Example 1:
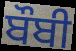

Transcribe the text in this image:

ਬੌਬੀ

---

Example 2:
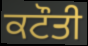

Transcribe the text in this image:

ਕਟੌਤੀ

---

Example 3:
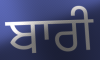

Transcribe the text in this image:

ਬਾਰੀ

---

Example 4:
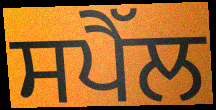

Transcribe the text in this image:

ਸਪੈੱਲ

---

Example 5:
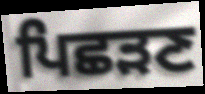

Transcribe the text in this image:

ਪਿਛੜਣ